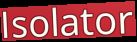
Isolator